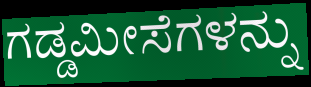
ಗಡ್ಡಮೀಸೆಗಳನ್ನು